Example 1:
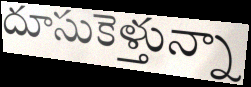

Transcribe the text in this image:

దూసుకెళ్తున్నా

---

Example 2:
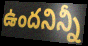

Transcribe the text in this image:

ఉందనిన్నీ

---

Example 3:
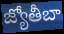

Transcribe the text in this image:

జ్యోతీబా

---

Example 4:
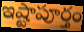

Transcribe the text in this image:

ఇష్టాపూర్తం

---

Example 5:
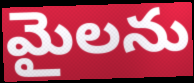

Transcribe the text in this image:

మైలను